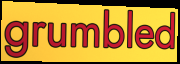
grumbled